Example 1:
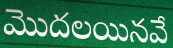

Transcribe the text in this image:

మొదలయినవే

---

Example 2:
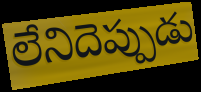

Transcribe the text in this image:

లేనిదెప్పుడు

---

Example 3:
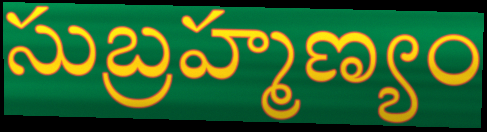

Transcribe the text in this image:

సుబ్రహ్మణ్యం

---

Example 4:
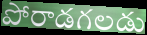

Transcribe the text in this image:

పోరాడగలడు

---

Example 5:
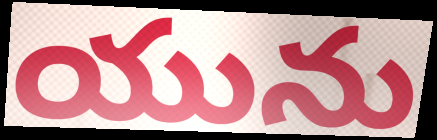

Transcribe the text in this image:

యును